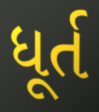
ધૂર્ત